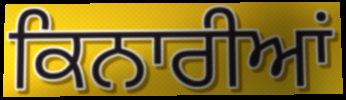
ਕਿਨਾਰੀਆਂ